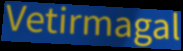
Vetirmagal